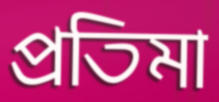
প্ৰতিমা